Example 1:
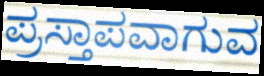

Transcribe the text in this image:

ಪ್ರಸ್ತಾಪವಾಗುವ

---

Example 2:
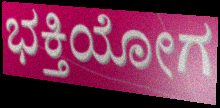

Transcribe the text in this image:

ಭಕ್ತಿಯೋಗ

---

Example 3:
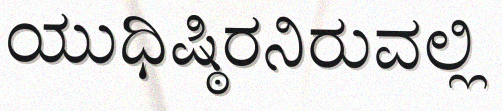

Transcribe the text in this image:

ಯುಧಿಷ್ಠಿರನಿರುವಲ್ಲಿ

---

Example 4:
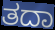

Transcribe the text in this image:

ತದಾ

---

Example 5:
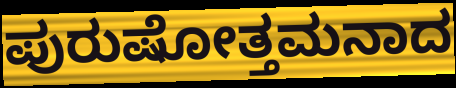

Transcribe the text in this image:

ಪುರುಷೋತ್ತಮನಾದ